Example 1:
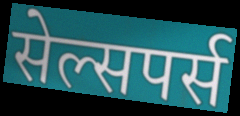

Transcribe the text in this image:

सेल्सपर्स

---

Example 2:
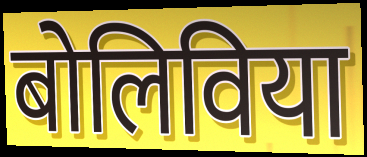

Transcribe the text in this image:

बोलिविया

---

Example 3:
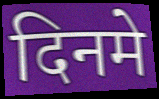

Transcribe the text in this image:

दिनमे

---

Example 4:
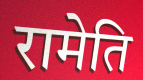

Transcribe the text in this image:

रामेति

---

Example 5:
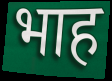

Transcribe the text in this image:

भाह